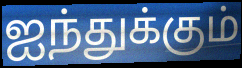
ஐந்துக்கும்